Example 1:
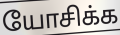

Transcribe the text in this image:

யோசிக்க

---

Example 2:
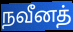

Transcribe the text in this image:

நவீனத்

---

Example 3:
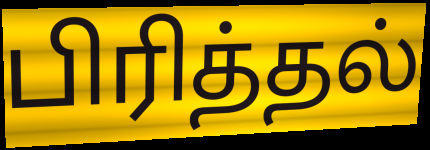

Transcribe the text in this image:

பிரித்தல்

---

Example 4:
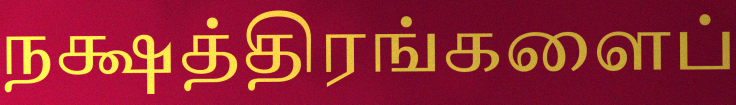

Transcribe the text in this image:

நக்ஷத்திரங்களைப்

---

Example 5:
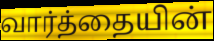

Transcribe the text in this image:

வார்த்தையின்